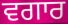
ਵਗਾਰ